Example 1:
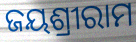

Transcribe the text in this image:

ଜୟଶ୍ରୀରାମ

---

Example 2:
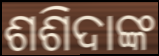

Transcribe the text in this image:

ଶଶିଦାଙ୍କ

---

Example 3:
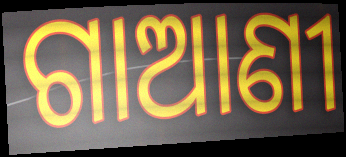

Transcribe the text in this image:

ଗାଆଣୀ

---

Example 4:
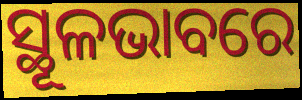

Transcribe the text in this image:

ସ୍ଥୂଳଭାବରେ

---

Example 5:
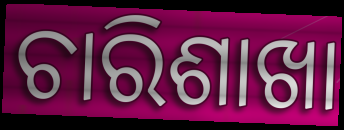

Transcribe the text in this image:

ଚାରିଶାଖା